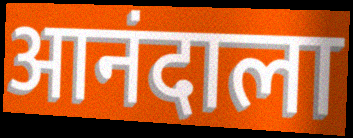
आनंदाला